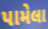
પામેલા